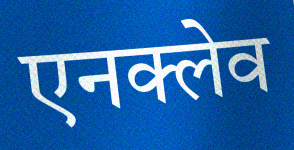
एनक्‍लेव